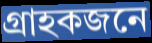
গ্ৰাহকজনে